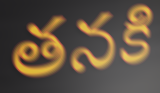
తనకి